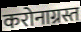
करोनाग्रस्त